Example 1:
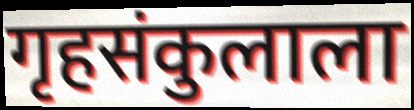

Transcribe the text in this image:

गृहसंकुलाला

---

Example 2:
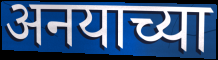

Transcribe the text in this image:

अनयाच्या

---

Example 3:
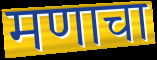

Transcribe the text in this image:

मणाचा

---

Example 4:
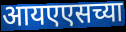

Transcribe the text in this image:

आयएएसच्या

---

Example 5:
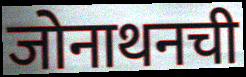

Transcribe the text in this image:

जोनाथनची